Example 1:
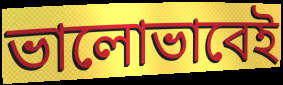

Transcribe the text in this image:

ভালোভাবেই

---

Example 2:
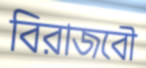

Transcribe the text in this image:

বিরাজবৌ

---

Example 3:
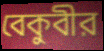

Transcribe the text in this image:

বেকুবীর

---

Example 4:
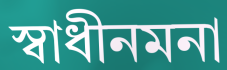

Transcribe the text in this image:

স্বাধীনমনা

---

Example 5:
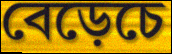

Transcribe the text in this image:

বেড়েচে